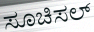
ಸೂಚಿಸಲ್